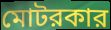
মোটরকার